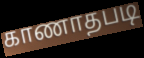
காணாதபடி